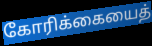
கோரிக்கையைத்